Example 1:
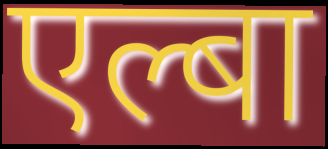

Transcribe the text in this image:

एल्बा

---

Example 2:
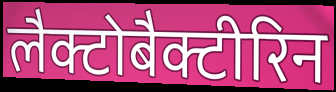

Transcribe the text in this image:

लैक्टोबैक्टीरिन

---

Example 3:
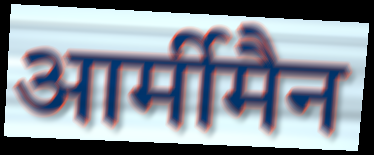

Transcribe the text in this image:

आर्मीमैन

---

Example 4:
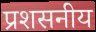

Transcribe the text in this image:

प्रशसनीय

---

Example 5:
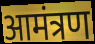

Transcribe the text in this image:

आमंत्रण